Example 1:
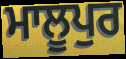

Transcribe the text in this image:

ਮਾਲੂਪੁਰ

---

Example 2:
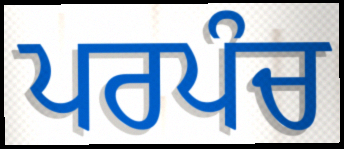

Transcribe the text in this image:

ਪਰਪੰਚ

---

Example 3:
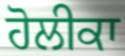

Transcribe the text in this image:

ਹੋਲੀਕਾ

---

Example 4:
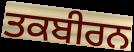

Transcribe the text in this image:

ਤਕਬੀਰਨ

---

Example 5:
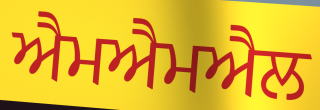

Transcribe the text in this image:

ਐਮਐਮਐਲ